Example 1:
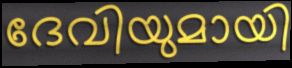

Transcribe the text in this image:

ദേവിയുമായി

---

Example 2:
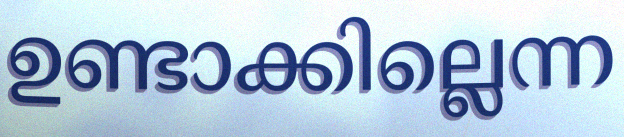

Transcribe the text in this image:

ഉണ്ടാക്കില്ലെന്ന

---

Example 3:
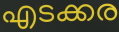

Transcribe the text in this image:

എടക്കര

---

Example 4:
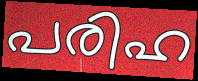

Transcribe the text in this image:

പരിഹ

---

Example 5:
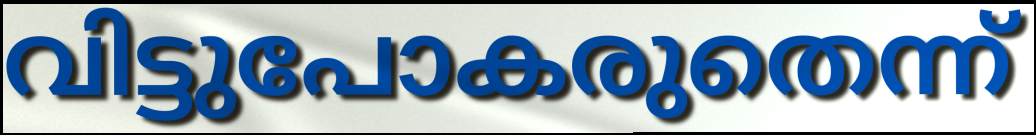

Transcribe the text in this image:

വിട്ടുപോകരുതെന്ന്